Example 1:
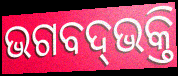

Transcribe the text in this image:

ଭଗବଦ୍‌ଭକ୍ତି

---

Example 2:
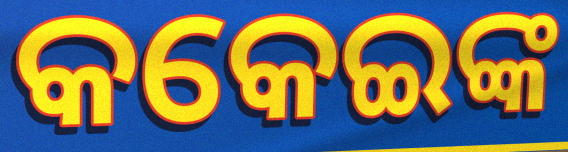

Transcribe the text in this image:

କକେଇଙ୍କ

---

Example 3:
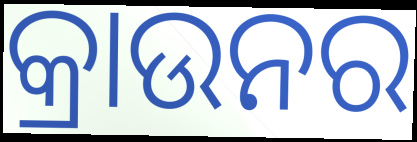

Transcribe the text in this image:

କ୍ରାଉନର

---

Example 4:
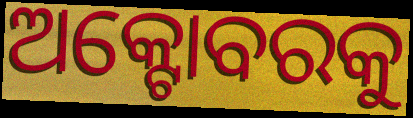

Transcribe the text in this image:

ଅକ୍ଟୋବରକୁ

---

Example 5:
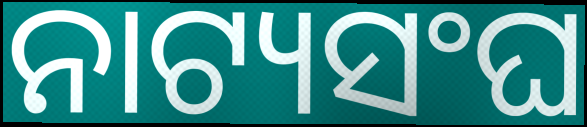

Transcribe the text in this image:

ନାଟ୍ୟସଂଘ